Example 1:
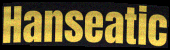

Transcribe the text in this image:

Hanseatic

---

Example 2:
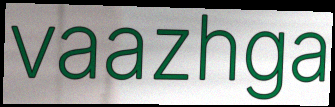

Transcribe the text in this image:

vaazhga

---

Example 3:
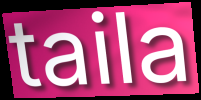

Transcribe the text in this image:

taila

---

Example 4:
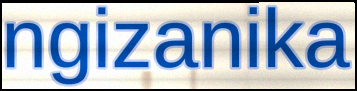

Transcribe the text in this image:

ngizanika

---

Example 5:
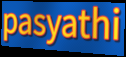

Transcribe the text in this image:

pasyathi